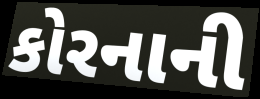
કોરનાની